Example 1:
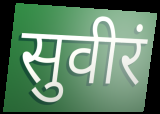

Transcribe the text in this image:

सुवीरं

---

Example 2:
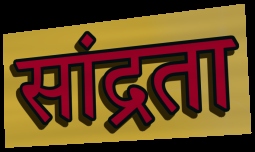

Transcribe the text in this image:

सांद्रता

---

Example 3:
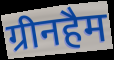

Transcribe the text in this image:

ग्रीनहैम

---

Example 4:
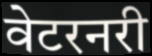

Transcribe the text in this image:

वेटरनरी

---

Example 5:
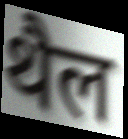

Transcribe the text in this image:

थैल